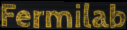
Fermilab